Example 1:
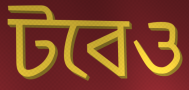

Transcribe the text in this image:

টবেও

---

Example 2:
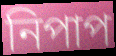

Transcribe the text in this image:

নিপাপ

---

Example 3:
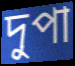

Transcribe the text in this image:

দুপা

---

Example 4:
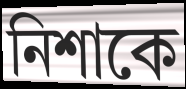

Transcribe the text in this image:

নিশাকে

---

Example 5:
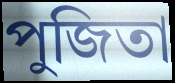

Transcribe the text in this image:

পুজিতা